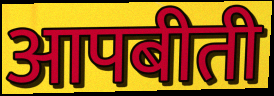
आपबीती